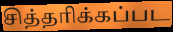
சித்தரிக்கப்பட